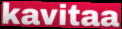
kavitaa